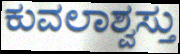
ಕುವಲಾಶ್ವಸ್ತು